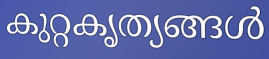
കുറ്റകൃത്യങ്ങൾ